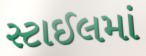
સ્ટાઈલમાં